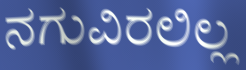
ನಗುವಿರಲಿಲ್ಲ